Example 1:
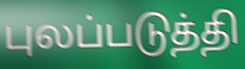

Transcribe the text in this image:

புலப்படுத்தி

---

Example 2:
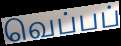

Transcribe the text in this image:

வெப்பப்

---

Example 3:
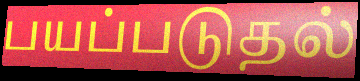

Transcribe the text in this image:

பயப்படுதல்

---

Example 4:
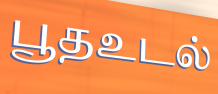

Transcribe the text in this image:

பூதஉடல்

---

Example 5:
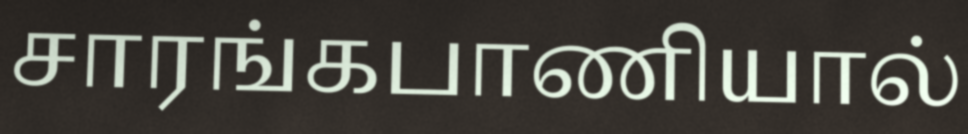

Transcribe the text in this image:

சாரங்கபாணியால்